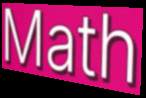
Math